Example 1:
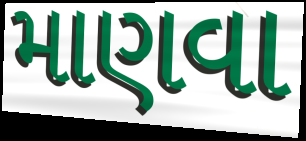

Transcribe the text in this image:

માણવા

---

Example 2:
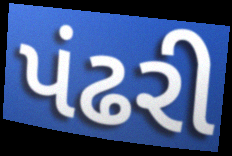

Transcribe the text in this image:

પંઢરી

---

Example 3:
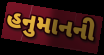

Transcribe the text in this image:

હનુમાનની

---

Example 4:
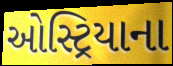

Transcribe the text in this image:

ઓસ્ટ્રિયાના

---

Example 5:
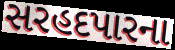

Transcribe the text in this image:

સરહદપારના